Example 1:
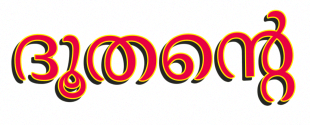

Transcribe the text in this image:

ദൂതന്റെ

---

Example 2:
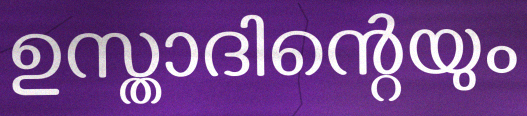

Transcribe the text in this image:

ഉസ്താദിന്റെയും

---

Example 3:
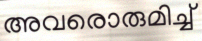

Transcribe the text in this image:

അവരൊരുമിച്ച്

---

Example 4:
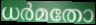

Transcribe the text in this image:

ധർമതോ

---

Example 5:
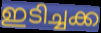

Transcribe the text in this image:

ഇടിച്ചക്ക